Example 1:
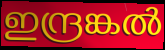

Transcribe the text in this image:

ഇന്ദ്രങ്കൽ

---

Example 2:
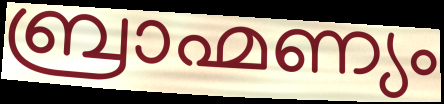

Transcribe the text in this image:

ബ്രാഹ്മണ്യം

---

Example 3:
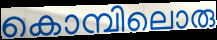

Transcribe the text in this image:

കൊമ്പിലൊരു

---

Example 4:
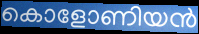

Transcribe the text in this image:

കൊളോണിയൻ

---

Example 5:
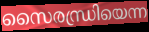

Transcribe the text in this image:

സൈരന്ധ്രിയെന്ന